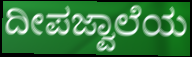
ದೀಪಜ್ವಾಲೆಯ